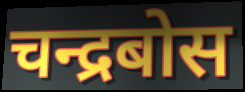
चन्द्रबोस